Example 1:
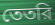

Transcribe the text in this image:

তেতরি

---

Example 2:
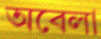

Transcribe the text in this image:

অবেলা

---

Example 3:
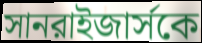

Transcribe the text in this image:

সানরাইজার্সকে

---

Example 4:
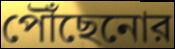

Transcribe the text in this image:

পৌঁছেনোর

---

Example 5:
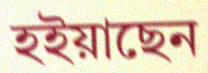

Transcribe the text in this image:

হইয়াছেন